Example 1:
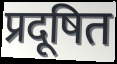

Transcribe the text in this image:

प्रदूषित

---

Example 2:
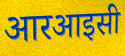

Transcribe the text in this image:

आरआइसी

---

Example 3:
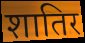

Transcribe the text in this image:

शातिर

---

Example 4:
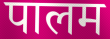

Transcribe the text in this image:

पालम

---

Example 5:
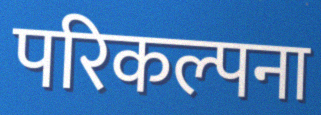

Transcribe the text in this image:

परिकल्पना